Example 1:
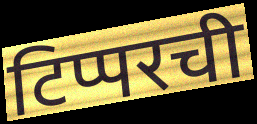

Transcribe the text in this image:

टिप्परची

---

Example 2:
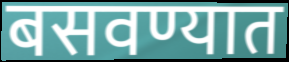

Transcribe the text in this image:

बसवण्यात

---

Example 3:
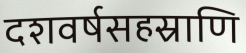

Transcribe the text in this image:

दशवर्षसहस्राणि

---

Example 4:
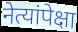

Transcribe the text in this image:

नेत्यांपेक्षा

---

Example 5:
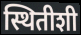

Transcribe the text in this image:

स्थितीशी